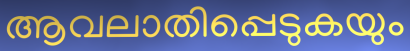
ആവലാതിപ്പെടുകയും